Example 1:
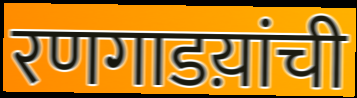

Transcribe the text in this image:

रणगाडय़ांची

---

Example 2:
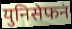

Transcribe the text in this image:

युनिसेफनं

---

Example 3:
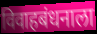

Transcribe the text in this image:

विवाहबंधनाला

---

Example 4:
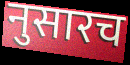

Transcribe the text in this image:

नुसारच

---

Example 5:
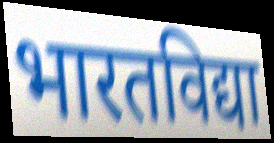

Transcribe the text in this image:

भारतविद्या